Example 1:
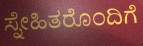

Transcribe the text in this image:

ಸ್ನೇಹಿತರೊಂದಿಗೆ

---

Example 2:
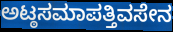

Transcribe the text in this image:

ಅಟ್ಠಸಮಾಪತ್ತಿವಸೇನ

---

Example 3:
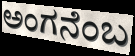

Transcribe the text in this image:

ಅಂಗನೆಂಬ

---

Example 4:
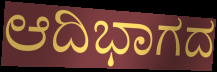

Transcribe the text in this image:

ಆದಿಭಾಗದ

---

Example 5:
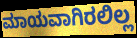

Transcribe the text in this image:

ಮಾಯವಾಗಿರಲಿಲ್ಲ